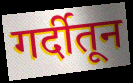
गर्दीतून